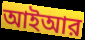
আইআর